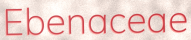
Ebenaceae